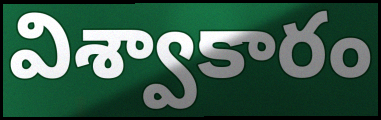
విశ్వాకారం